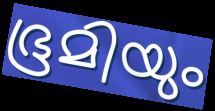
ഭൂമിയും